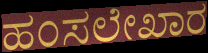
ಹಂಸಲೇಖಾರ